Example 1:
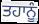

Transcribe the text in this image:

ਤਹਾਨੂੰ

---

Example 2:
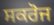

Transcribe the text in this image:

ਸਕਰੋਜ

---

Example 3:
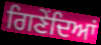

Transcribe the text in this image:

ਗਿਣੇਂਦਿਆਂ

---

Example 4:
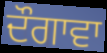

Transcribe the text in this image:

ਦੌਗਾਵਾ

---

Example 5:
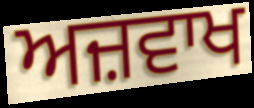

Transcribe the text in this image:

ਅਜ਼ਵਾਖ